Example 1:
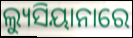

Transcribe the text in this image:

ଲ୍ୟୁସିୟାନାରେ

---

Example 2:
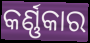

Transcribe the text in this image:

କର୍ଣ୍ଣକାର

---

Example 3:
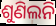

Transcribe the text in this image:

ଶୁଣିଲନି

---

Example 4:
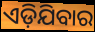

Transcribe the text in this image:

ଏଡ଼ିଯିବାର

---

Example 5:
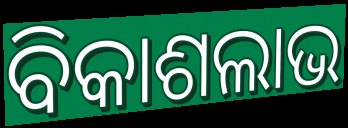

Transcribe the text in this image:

ବିକାଶଲାଭ